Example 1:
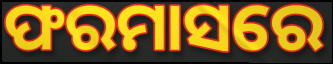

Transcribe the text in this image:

ଫରମାସରେ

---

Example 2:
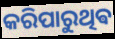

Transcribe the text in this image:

କରିପାରୁଥିଵ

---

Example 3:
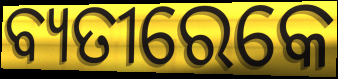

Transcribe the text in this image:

ବ୍ୟତୀରେକେ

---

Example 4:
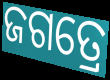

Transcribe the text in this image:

ଜଗତ୍ରେ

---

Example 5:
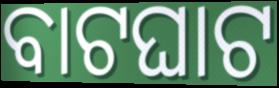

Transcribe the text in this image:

ବାଟଘାଟ